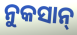
ନୁକସାନ୍